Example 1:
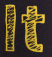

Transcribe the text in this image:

It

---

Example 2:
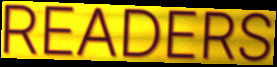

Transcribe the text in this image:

READERS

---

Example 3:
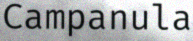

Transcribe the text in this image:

Campanula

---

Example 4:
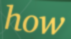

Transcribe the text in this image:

how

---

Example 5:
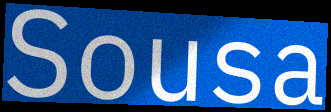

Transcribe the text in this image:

Sousa